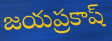
జయప్రకాష్